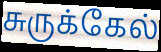
சுருக்கேல்